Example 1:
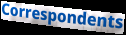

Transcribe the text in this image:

Correspondents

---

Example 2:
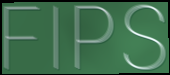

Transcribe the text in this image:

FIPS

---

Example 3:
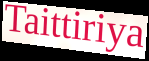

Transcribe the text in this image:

Taittiriya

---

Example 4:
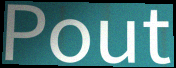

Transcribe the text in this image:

Pout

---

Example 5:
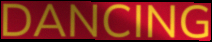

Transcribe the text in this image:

DANCING